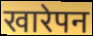
खारेपन